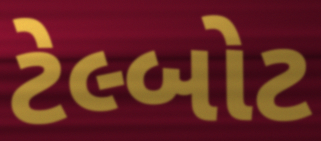
ટેલ્બોટ